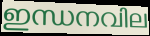
ഇന്ധനവില